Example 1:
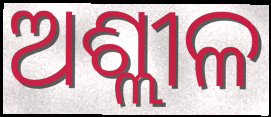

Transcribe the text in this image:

ଅଶ୍ଲୀଳ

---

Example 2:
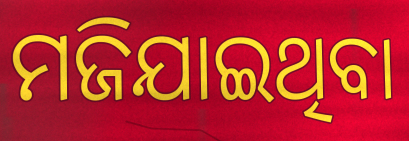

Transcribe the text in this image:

ମଜିଯାଇଥିବା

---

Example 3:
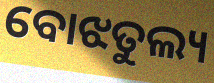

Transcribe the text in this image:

ବୋଝତୁଲ୍ୟ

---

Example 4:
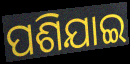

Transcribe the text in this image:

ପଶିଯାଇ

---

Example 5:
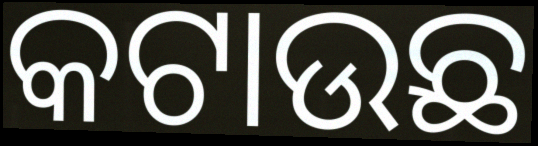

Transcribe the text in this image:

କଟାଉଛ